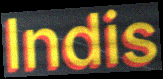
Indis